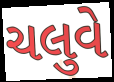
ચલુવે